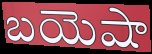
బయెషా